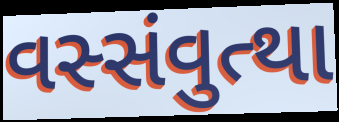
વસ્સંવુત્થા